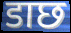
डाछ